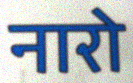
नारो